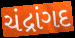
ચંદ્રાંગદ